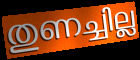
തുണച്ചില്ല